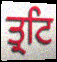
ਤ੍ਰਟਿ